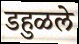
डहुळले